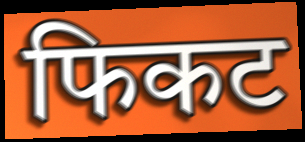
फिकट